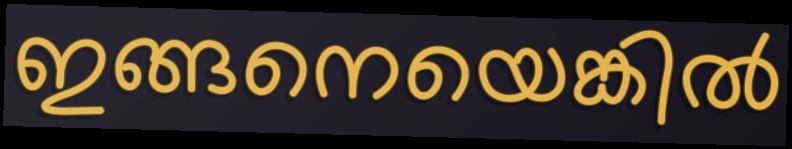
ഇങ്ങനെയെങ്കിൽ